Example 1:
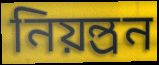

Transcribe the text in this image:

নিয়ন্ত্ৰন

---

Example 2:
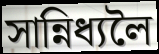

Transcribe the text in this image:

সান্নিধ্যলৈ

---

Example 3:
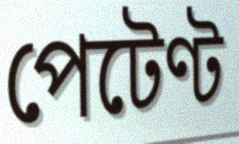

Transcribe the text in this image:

পেটেণ্ট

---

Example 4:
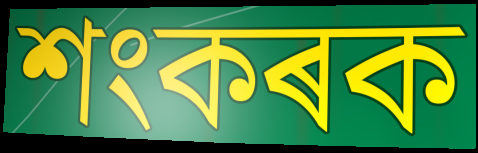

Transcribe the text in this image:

শংকৰক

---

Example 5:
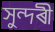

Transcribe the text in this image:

সুন্দৰী